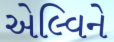
એલ્વિને